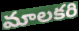
మాలకరి